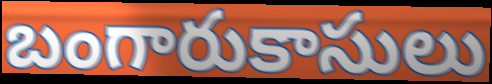
బంగారుకాసులు